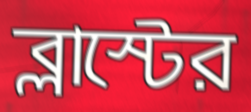
ব্লাস্টের